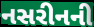
નસરીનની